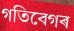
গতিবেগৰ